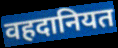
वहदानियत